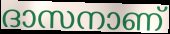
ദാസനാണ്